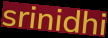
srinidhi